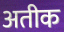
अतीक